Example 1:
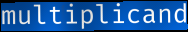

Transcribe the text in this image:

multiplicand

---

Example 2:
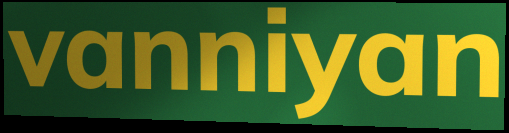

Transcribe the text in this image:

vanniyan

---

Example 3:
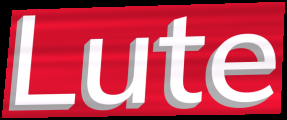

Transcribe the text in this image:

Lute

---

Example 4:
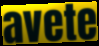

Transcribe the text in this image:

avete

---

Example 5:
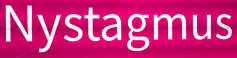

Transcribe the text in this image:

Nystagmus